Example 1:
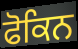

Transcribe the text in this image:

ਫੋਕਿਨ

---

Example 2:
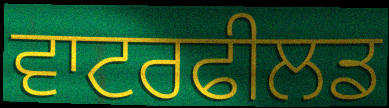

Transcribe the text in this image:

ਵਾਟਰਫੀਲਡ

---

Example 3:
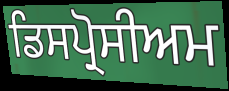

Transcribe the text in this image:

ਡਿਸਪ੍ਰੋਸੀਅਮ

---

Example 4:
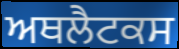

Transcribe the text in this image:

ਅਥਲੈਟਕਸ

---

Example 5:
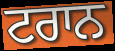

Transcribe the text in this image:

ਟਰਾਨ